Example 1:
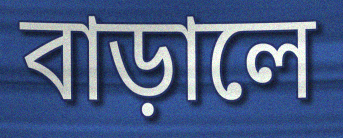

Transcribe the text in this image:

বাড়ালে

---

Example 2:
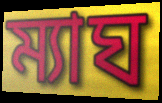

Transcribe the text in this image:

ম্যাঘ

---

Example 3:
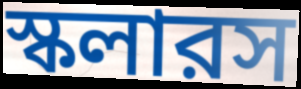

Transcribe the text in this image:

স্কলারস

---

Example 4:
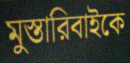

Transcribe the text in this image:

মুস্তারিবাইকে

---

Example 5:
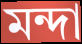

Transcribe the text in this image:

মন্দা